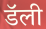
डॅली